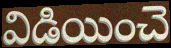
విడియించె